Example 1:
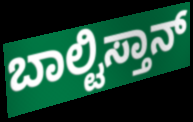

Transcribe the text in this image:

ಬಾಲ್ಟಿಸ್ತಾನ್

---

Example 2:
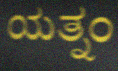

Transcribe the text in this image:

ಯತ್ನಂ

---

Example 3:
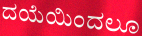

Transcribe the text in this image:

ದಯೆಯಿಂದಲೂ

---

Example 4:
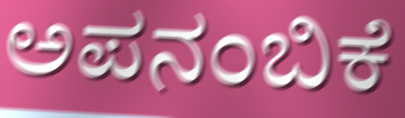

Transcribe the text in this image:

ಅಪನಂಬಿಕೆ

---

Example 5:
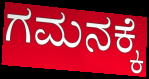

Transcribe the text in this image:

ಗಮನಕ್ಕೆ